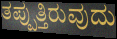
ತಪ್ಪುತ್ತಿರುವುದು